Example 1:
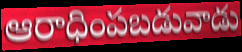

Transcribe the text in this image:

ఆరాధింపబడువాడు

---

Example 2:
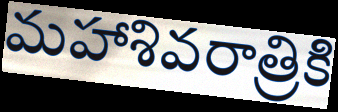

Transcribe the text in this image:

మహాశివరాత్రికి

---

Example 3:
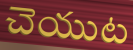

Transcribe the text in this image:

చెయుట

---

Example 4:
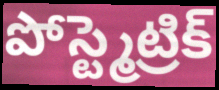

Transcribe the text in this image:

పోస్ట్మెట్రిక్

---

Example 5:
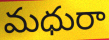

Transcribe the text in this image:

మధురా